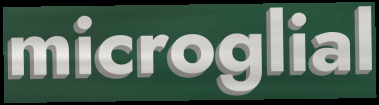
microglial